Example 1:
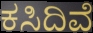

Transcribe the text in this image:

ಕಸಿದಿವೆ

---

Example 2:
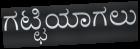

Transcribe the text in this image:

ಗಟ್ಟಿಯಾಗಲು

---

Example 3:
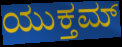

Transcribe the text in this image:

ಯುಕ್ತಮ್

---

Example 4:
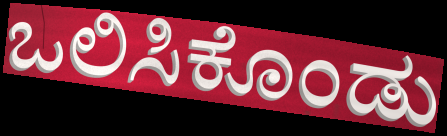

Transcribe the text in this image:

ಒಲಿಸಿಕೊಂಡು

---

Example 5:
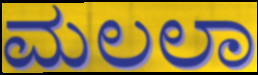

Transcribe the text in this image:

ಮಲಲಾ